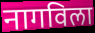
नागविला